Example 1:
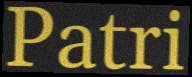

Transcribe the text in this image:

Patri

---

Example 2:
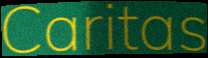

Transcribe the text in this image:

Caritas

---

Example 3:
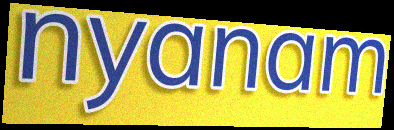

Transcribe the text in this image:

nyanam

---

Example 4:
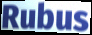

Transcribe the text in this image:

Rubus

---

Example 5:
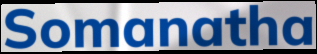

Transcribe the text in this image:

Somanatha